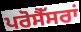
ਪਰੋਸੈੱਸਰਾਂ